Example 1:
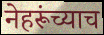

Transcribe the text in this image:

नेहरूंच्याच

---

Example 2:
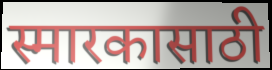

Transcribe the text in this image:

स्मारकासाठी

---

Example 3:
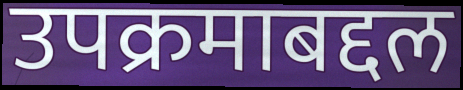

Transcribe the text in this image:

उपक्रमाबद्दल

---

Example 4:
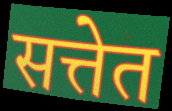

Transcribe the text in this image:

सत्तेत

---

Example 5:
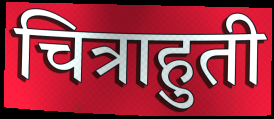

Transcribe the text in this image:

चित्राहुती